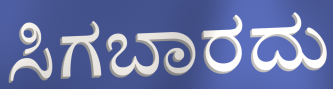
ಸಿಗಬಾರದು